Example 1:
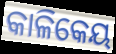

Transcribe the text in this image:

କାଳିକେୟ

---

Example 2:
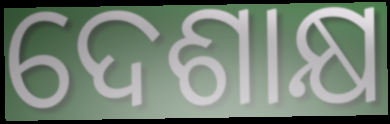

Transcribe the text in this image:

ଦେଶାକ୍ଷ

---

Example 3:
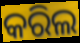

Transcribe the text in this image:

କରିଲ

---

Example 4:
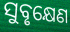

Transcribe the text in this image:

ସୁବୃକ୍ଷେଣ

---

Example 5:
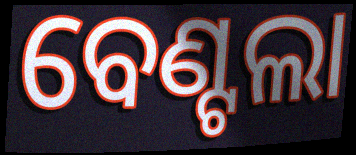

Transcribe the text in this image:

ବେଣ୍ଟଲା